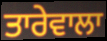
ਤਾਰੇਵਾਲਾ